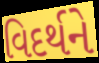
વિદર્થને